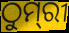
ଠୁମ୍‌ରୀ